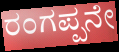
ರಂಗಪ್ಪನೇ